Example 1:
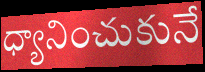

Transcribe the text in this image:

ధ్యానించుకునే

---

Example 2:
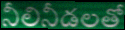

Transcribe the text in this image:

నీలినీడలతో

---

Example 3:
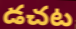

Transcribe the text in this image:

డచట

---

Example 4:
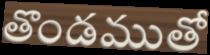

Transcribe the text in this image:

తొండముతో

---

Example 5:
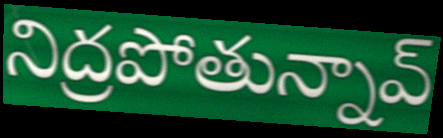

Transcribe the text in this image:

నిద్రపోతున్నావ్